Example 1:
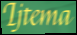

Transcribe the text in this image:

Ijtema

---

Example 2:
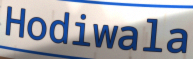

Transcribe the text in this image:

Hodiwala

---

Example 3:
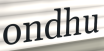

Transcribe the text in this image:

ondhu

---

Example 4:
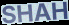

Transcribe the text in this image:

SHAH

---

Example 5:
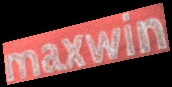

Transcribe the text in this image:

maxwin